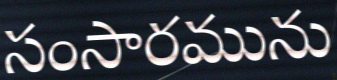
సంసారమును